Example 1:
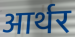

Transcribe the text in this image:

आर्थर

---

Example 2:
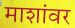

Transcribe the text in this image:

माशांवर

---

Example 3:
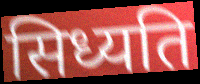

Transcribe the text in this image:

सिध्यति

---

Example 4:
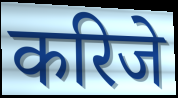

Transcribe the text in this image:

करिजे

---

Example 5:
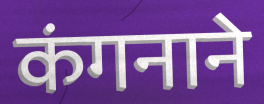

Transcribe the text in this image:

कंगनाने